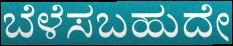
ಬೆಳೆಸಬಹುದೇ